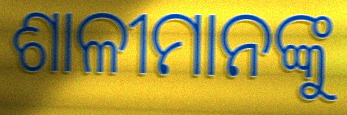
ଶାଳୀମାନଙ୍କୁ